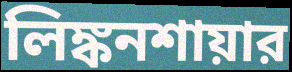
লিঙ্কনশায়ার